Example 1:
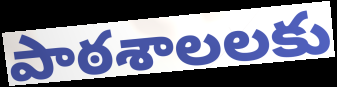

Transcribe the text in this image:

పాఠశాలలకు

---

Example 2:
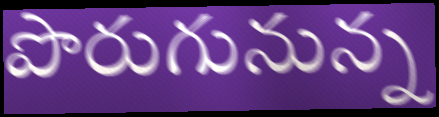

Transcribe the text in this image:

పొరుగునున్న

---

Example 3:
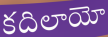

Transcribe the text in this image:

కదిలాయో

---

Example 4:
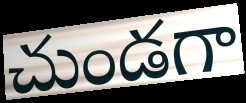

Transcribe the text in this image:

చుండగా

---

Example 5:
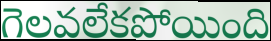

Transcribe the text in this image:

గెలవలేకపోయింది